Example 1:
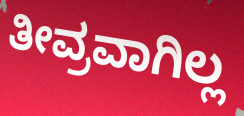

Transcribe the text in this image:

ತೀವ್ರವಾಗಿಲ್ಲ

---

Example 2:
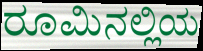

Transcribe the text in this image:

ರೂಮಿನಲ್ಲಿಯ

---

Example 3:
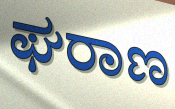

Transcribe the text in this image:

ಘರಾಣ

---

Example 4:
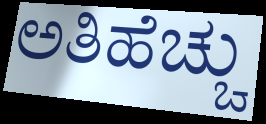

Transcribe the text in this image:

ಅತಿಹೆಚ್ಚು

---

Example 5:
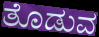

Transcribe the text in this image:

ತೊಡುವ